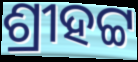
ଶ୍ରୀହଟ୍ଟ